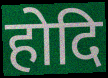
होदि